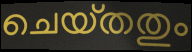
ചെയ്‌തതും